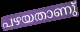
പഴയതാണു്